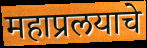
महाप्रलयाचे